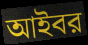
আইবর